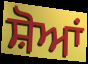
ਸ਼ੋਆਂ